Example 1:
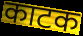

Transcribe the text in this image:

काटक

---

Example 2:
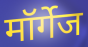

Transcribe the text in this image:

मॉर्गेज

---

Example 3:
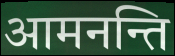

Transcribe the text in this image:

आमनन्ति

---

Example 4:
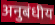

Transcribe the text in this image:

अनुबंधीय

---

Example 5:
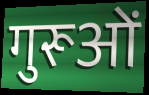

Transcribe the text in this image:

गुरूओं